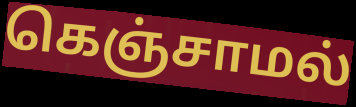
கெஞ்சாமல்